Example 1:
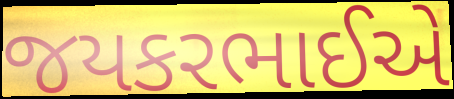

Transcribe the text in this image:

જયકરભાઈએ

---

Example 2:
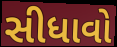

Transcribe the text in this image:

સીધાવો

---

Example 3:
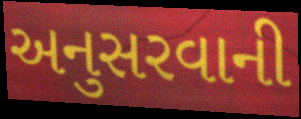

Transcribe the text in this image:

અનુસરવાની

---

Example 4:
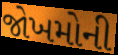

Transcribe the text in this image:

જોખમોની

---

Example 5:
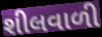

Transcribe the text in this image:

શીલવાળી